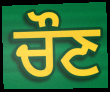
ਚੌਣ